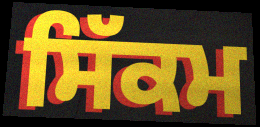
ਸਿੱਕਮ